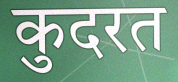
कुदरत